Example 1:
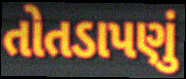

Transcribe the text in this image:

તોતડાપણું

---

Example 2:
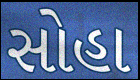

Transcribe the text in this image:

સોહા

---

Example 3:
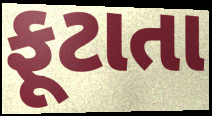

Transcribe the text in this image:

ફૂટાતા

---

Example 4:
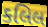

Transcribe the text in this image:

કલિલ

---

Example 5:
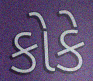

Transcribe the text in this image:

કોકે